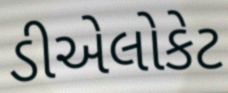
ડીએલોકેટ